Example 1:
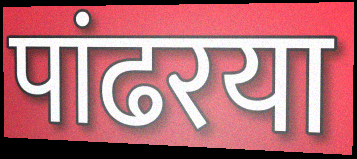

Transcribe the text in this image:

पांढरया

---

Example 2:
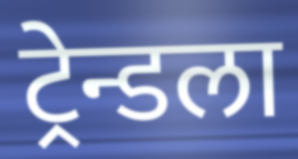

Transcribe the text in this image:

ट्रेन्डला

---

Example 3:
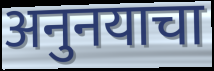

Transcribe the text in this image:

अनुनयाचा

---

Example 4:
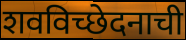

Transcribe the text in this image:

शवविच्छेदनाची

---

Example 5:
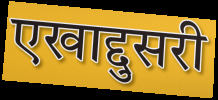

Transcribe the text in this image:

एखाद्दुसरी